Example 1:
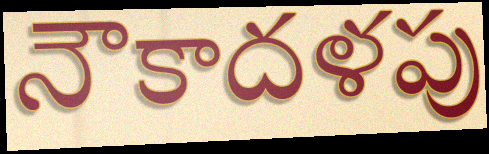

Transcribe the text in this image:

నౌకాదళపు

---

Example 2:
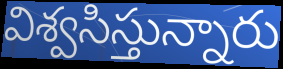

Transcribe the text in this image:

విశ్వసిస్తున్నారు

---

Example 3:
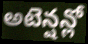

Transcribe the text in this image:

అటెన్షన్లో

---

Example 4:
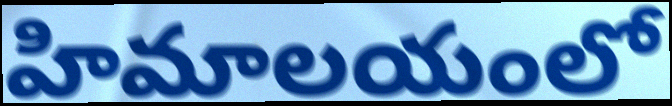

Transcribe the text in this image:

హిమాలయంలో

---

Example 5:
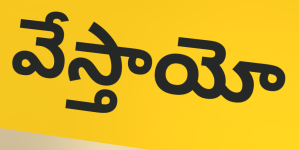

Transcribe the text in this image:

వేస్తాయో